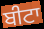
ਬੀਟਾ